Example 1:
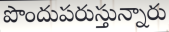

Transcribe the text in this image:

పొందుపరుస్తున్నారు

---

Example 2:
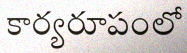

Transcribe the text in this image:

కార్యరూపంలో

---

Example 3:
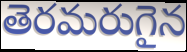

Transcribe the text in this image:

తెరమరుగైన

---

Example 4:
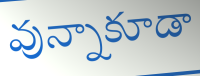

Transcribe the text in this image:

వున్నాకూడా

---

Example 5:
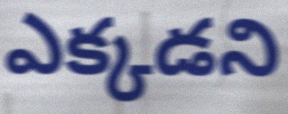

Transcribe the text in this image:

ఎక్కడని